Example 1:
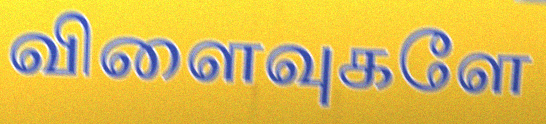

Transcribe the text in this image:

விளைவுகளே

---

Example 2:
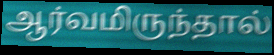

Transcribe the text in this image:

ஆர்வமிருந்தால்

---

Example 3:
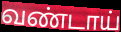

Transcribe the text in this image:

வண்டாய்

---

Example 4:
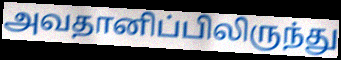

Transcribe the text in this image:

அவதானிப்பிலிருந்து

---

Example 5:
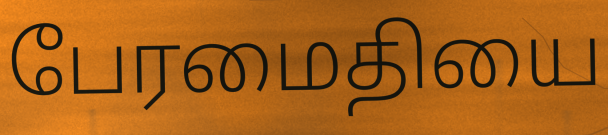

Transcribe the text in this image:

பேரமைதியை